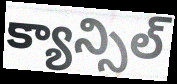
క్యాన్సిల్